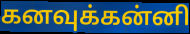
கனவுக்கன்னி